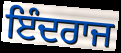
ਇੰਦਰਾਜ